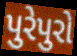
પુરેપુરો